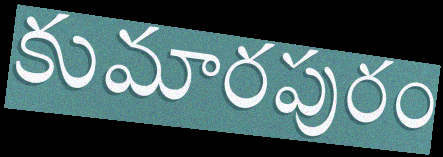
కుమారపురం